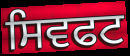
ਸਿਵਫਟ